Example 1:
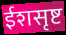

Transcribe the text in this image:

ईशसृष्ट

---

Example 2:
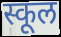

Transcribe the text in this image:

स्कूल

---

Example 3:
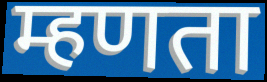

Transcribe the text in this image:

म्हणता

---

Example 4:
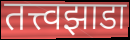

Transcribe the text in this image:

तत्त्वझाडा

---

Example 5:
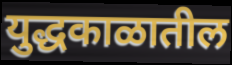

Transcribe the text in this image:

युद्धकाळातील